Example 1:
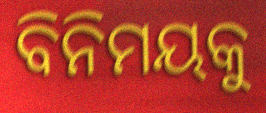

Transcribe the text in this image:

ବିନିମୟକୁ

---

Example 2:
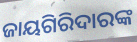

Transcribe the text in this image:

ଜାୟଗିରିଦାରଙ୍କ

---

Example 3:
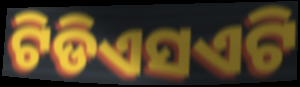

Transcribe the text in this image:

ଟିଡିଏସଏଟି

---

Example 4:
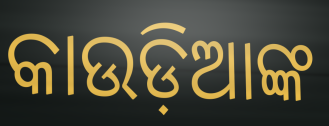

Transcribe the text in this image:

କାଉଡ଼ିଆଙ୍କ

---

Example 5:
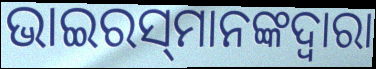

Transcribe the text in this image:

ଭାଇରସ୍‌ମାନଙ୍କଦ୍ୱାରା